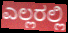
ಎಲ್ಲರಲ್ಲಿ